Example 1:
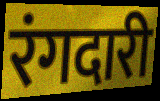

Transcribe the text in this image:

रंगदारी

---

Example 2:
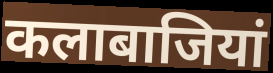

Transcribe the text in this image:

कलाबाजियां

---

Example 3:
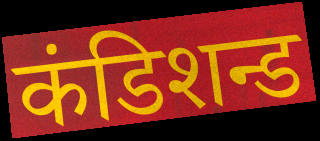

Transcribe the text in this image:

कंडिशन्ड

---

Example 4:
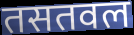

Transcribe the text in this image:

तसतवल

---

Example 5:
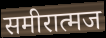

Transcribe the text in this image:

समीरात्मज